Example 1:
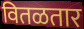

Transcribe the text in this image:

वितळतार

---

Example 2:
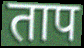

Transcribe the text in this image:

ताप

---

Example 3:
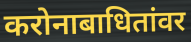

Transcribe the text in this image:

करोनाबाधितांवर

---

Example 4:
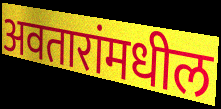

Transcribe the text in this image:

अवतारांमधील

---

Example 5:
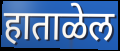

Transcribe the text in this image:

हाताळेल